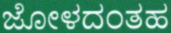
ಜೋಳದಂತಹ